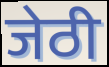
जेठी